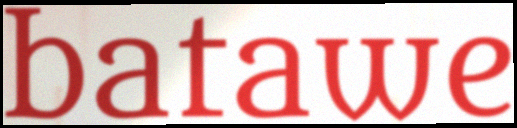
batawe